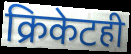
क्रिकेटही